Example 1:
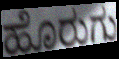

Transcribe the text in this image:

ಹೊರುಗು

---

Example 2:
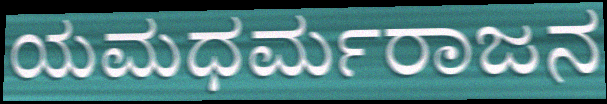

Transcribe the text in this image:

ಯಮಧರ್ಮರಾಜನ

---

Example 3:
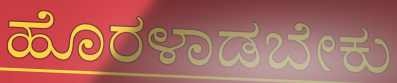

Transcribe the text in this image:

ಹೊರಳಾಡಬೇಕು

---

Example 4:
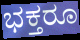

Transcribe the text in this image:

ಭಕ್ತರೂ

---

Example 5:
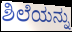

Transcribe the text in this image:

ಶಿಲೆಯನ್ನು